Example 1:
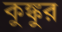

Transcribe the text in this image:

কুঙ্কুর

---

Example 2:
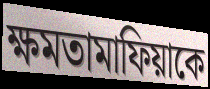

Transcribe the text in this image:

ক্ষমতামাফিয়াকে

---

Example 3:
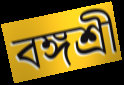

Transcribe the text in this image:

বঙ্গশ্রী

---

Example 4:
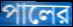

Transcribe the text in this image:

পালের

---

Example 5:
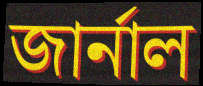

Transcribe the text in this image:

জার্নাল